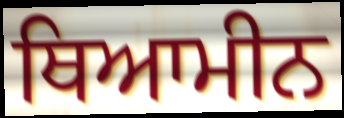
ਥਿਆਮੀਨ